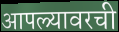
आपल्यावरची